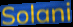
Solani